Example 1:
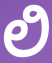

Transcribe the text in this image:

ಲಿ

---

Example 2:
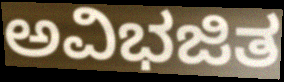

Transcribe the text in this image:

ಅವಿಭಜಿತ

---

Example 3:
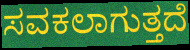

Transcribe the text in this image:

ಸವಕಲಾಗುತ್ತದೆ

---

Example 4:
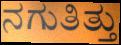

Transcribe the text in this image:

ನಗುತಿತ್ತು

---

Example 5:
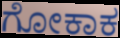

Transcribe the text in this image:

ಗೋಕಾಕ